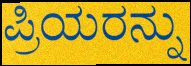
ಪ್ರಿಯರನ್ನು